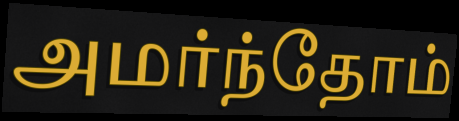
அமர்ந்தோம்